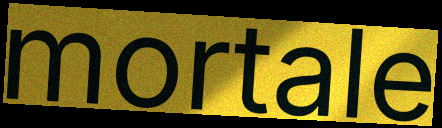
mortale